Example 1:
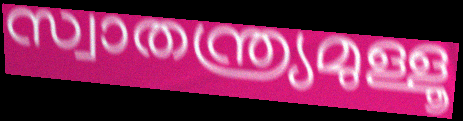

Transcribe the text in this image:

സ്വാതന്ത്ര്യമുള്ളൂ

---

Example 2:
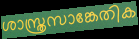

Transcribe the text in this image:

ശാസ്ത്രസാങ്കേതിക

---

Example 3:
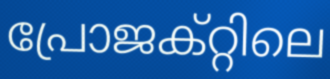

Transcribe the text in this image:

പ്രോജക്റ്റിലെ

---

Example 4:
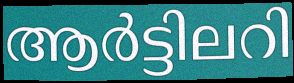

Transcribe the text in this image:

ആർട്ടിലറി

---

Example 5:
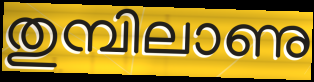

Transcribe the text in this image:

തുമ്പിലാണു